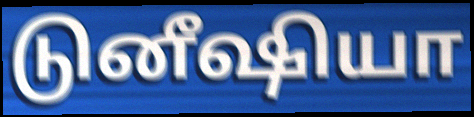
டுனீஷியா